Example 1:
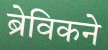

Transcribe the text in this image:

ब्रेविकने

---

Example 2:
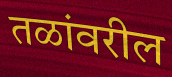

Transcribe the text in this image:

तळांवरील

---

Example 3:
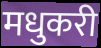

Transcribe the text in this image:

मधुकरी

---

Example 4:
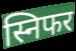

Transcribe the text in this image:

स्निफर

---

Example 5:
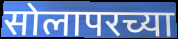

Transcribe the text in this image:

सोलापरच्या